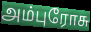
அம்புரோசு